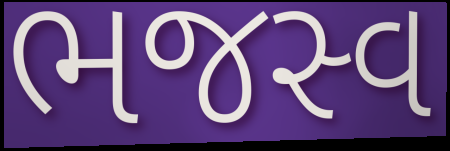
ભજસ્વ